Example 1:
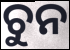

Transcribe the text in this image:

ଚୁନ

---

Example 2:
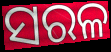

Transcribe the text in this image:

ସରଳ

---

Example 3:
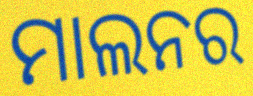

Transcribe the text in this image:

ମାଲନର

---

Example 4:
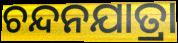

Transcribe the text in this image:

ଚନ୍ଦନଯାତ୍ରା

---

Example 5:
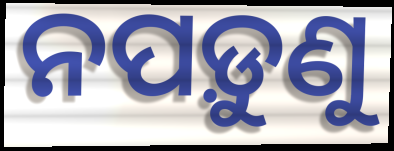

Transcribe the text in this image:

ନପଡ଼ୁଣୁ